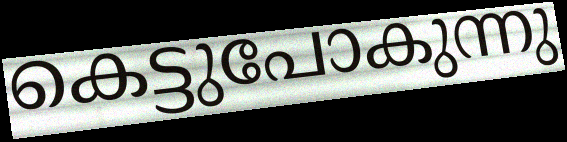
കെട്ടുപോകുന്നു